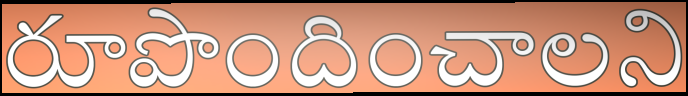
రూపొందించాలని